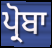
ਪ੍ਰੋਬਾ